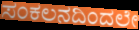
ಸಂಕಲನದಿಂದಲೇ